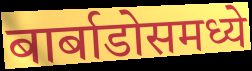
बार्बाडोसमध्ये